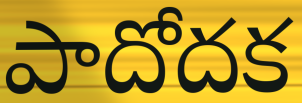
పాదోదక